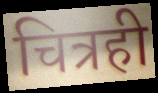
चित्रही